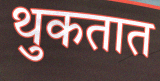
थुकतात